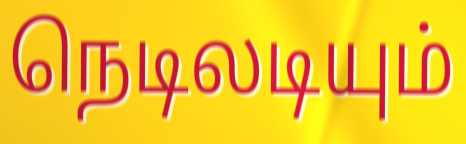
நெடிலடியும்